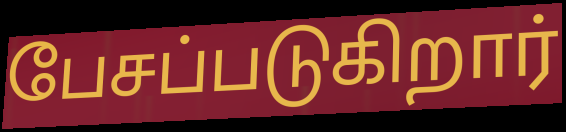
பேசப்படுகிறார்